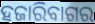
ହଜାରିବାଗର